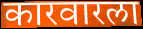
कारवारला